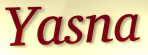
Yasna